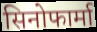
सिनोफार्मा